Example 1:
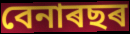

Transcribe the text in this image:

বেনাৰছৰ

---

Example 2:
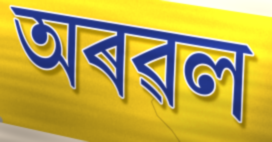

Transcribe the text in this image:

অৰৱল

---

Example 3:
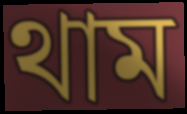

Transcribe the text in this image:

থাম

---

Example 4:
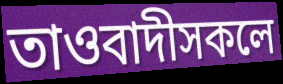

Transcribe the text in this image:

তাওবাদীসকলে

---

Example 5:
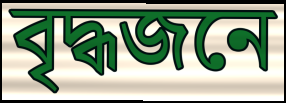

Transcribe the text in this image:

বৃদ্ধজনে